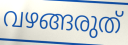
വഴങ്ങരുത്